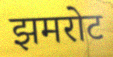
झमरोट